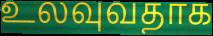
உலவுவதாக